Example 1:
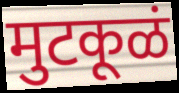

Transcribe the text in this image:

मुटकूळं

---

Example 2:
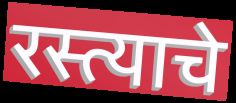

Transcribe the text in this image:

रस्त्याचे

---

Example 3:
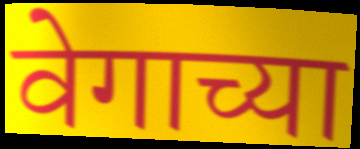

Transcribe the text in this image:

वेगाच्या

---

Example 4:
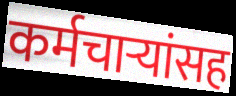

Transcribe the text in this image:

कर्मचाऱ्यांसह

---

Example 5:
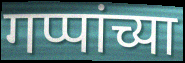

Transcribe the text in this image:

गप्पांच्या